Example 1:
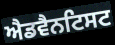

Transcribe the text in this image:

ਐਡਵੈਨਟਿਸਟ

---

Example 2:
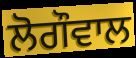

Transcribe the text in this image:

ਲੋਗੌਵਾਲ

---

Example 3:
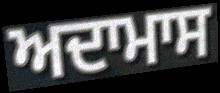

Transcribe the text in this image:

ਅਦਾਮਾਸ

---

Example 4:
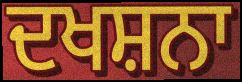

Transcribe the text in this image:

ਦਖਸ਼ਨਾ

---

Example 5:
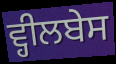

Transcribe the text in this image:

ਵ੍ਹੀਲਬੇਸ